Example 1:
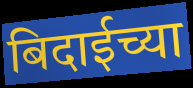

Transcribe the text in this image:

बिदाईच्या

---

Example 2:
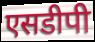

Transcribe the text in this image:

एसडीपी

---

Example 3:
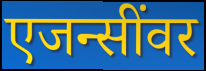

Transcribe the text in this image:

एजन्सींवर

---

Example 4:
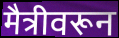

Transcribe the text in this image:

मैत्रीवरून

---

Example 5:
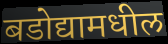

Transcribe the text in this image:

बडोद्यामधील